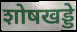
शोषखड्डे